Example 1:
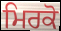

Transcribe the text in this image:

ਮਿਰਕੋ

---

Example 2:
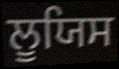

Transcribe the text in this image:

ਲੂਯਿਸ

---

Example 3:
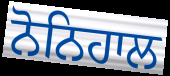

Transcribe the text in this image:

ਨੋਨਿਹਾਲ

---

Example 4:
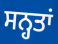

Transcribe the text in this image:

ਸਨ੍ਹਤਾਂ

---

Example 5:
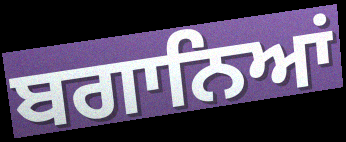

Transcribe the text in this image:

ਬਗਾਨਿਆਂ